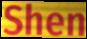
Shen